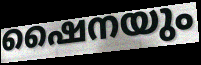
ഷൈനയും